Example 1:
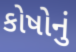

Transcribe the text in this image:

કોષોનું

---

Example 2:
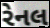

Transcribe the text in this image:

રેનલ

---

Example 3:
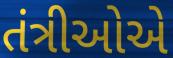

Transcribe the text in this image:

તંત્રીઓએ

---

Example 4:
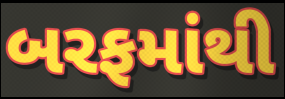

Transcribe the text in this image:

બરફમાંથી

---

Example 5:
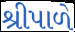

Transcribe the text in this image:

શ્રીપાળે